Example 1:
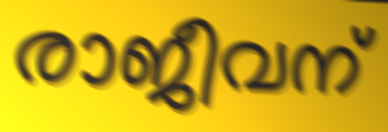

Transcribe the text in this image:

രാജീവന്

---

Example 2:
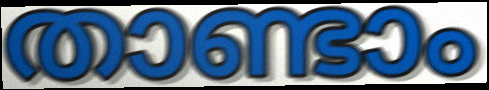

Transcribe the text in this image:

താണ്ടാം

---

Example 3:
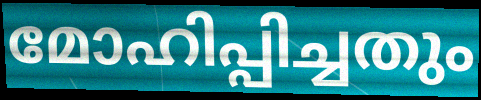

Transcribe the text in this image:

മോഹിപ്പിച്ചതും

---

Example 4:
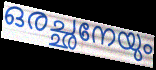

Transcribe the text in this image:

ഒരച്ഛനേയും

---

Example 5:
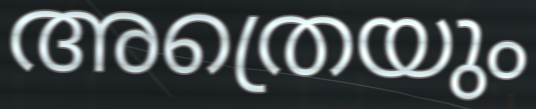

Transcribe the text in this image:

അത്രെയും